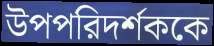
উপপরিদর্শককে